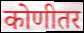
कोणीतर